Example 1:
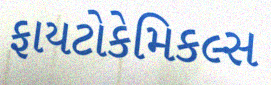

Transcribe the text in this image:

ફાયટોકેમિકલ્સ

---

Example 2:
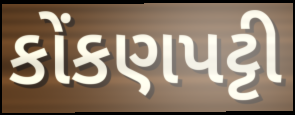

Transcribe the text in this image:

કોંકણપટ્ટી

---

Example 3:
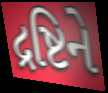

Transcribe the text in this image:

દ્રષ્ટિને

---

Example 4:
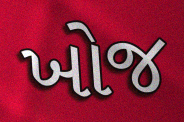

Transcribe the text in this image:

ખોજ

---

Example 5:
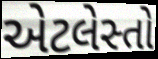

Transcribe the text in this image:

એટલેસ્તો